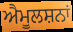
ਐਮੂਲਸ਼ਨਾਂ